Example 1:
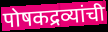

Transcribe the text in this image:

पोषकद्रव्यांची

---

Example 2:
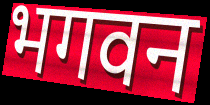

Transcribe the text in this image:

भगवन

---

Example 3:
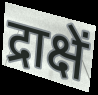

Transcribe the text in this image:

द्राक्षें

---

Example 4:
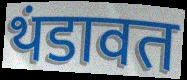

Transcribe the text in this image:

थंडावत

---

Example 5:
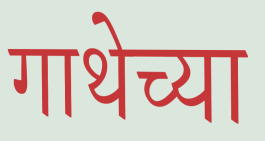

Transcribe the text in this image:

गाथेच्या